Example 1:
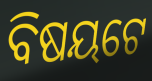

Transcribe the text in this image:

ବିଷୟଟେ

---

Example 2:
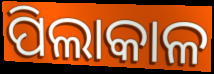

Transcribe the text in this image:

ପିଲାକାଳ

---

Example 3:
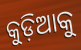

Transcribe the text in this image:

କୁଡ଼ିଆକୁ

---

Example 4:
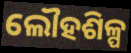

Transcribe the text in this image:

ଲୌହଶିଳ୍ପ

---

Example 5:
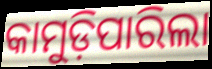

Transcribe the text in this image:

କାମୁଡ଼ିପାରିଲା